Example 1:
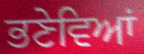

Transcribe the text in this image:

ਭਣੇਵਿਆਂ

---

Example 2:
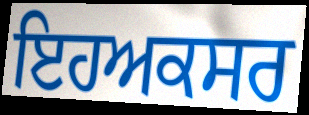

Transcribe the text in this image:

ਇਹਅਕਸਰ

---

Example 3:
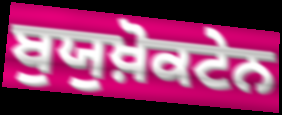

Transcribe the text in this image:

ਬੁਯੁਖ਼ੋਕਟੇਨ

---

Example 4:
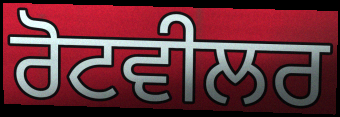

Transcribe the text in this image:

ਰੋਟਵੀਲਰ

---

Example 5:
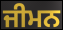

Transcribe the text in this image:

ਜੀਮਨ